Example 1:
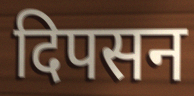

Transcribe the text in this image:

दिपसन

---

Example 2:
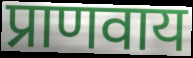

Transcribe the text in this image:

प्राणवाय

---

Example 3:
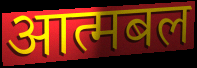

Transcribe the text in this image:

आत्मबल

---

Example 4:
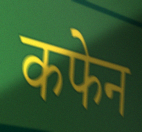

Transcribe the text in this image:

कफेन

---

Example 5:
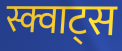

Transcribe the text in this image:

स्क्वाट्स